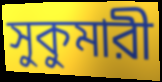
সুকুমারী